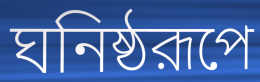
ঘনিষ্ঠরূপে